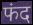
फंद